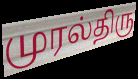
முரல்திரு